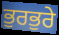
ਭੁਰਭੁਰੇ